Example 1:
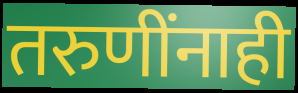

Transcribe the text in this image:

तरुणींनाही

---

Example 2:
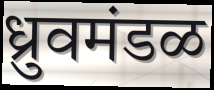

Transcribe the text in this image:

ध्रुवमंडळ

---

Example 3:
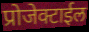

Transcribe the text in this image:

प्रोजेक्टाईल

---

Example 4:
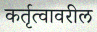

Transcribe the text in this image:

कर्तृत्वावरील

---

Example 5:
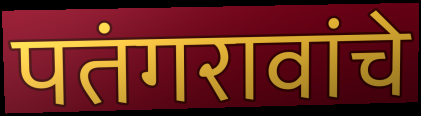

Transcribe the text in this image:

पतंगरावांचे